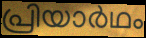
പ്രിയാർഥം